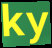
ky